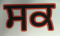
ਸਕ